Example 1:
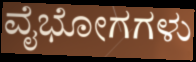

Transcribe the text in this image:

ವೈಭೋಗಗಳು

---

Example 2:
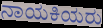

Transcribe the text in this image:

ನಾಯಕಿಯರು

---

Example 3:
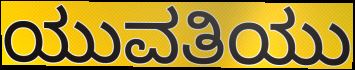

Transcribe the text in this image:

ಯುವತಿಯು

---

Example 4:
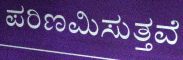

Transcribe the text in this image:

ಪರಿಣಮಿಸುತ್ತವೆ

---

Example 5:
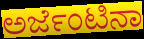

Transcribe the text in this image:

ಅರ್ಜೆಂಟಿನಾ